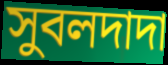
সুবলদাদা